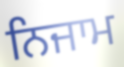
ਨਿਜਾਮ